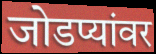
जोडप्यांवर